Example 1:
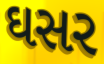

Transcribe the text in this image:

ઘસર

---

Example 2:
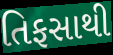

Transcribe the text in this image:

તિફસાથી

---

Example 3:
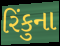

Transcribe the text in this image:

રિંકુના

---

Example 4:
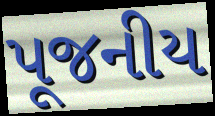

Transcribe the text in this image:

પૂજનીય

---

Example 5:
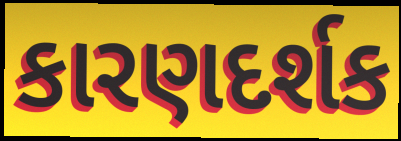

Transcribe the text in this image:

કારણદર્શક